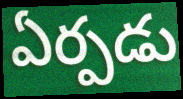
ఏర్పడు